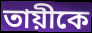
তায়ীকে